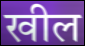
खील